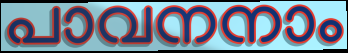
പാവനനാം